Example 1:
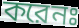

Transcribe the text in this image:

করেনঃ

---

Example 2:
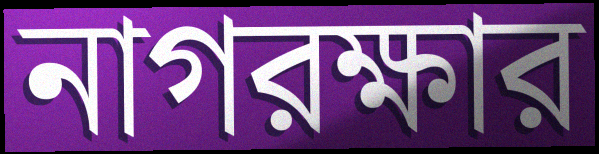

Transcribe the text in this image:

নাগরক্ষার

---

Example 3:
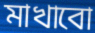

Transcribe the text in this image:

মাখাবো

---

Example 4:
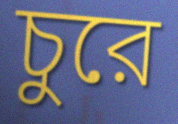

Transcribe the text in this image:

চুরে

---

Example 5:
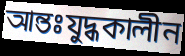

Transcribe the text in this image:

আন্তঃযুদ্ধকালীন